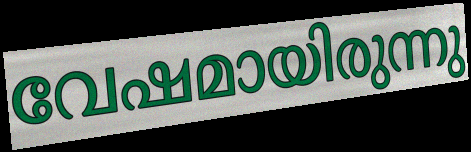
വേഷമായിരുന്നു